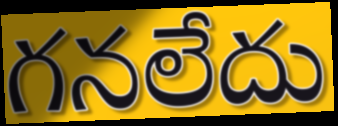
గనలేదు